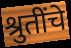
श्रुतींचे